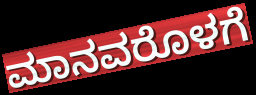
ಮಾನವರೊಳಗೆ